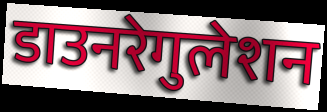
डाउनरेगुलेशन